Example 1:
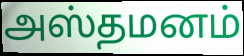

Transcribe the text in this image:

அஸ்தமனம்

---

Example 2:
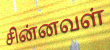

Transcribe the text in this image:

சின்னவள்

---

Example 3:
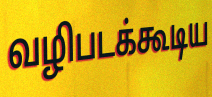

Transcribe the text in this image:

வழிபடக்கூடிய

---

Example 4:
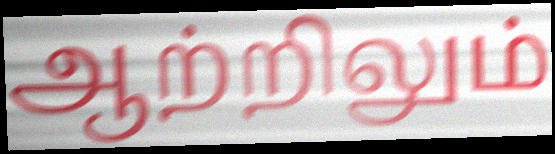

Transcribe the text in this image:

ஆற்றிலும்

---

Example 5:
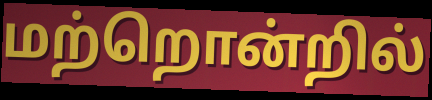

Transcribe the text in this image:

மற்றொன்றில்